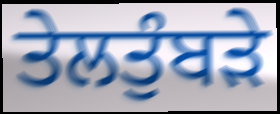
ਤੇਲਤੁੰਬੜੇ